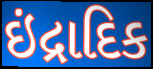
ઇંદ્રાદિક